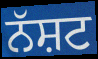
ਨੱਸ਼ਟ